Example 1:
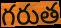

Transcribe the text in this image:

గరుత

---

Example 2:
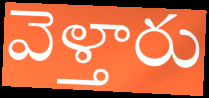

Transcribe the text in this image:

వెళ్తారు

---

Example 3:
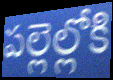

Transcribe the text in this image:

పల్లెల్లోకి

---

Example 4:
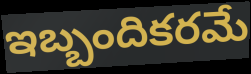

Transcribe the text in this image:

ఇబ్బందికరమే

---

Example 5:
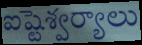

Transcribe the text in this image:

ఐష్టెశ్వర్యాలు